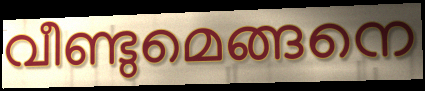
വീണ്ടുമെങ്ങനെ